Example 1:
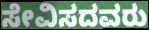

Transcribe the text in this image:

ಸೇವಿಸದವರು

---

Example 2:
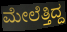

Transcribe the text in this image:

ಮೇಲೆತ್ತಿದ್ದ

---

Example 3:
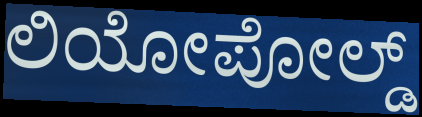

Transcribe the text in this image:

ಲಿಯೋಪೋಲ್ಡ್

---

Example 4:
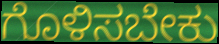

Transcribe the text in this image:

ಗೊಳಿಸಬೇಕು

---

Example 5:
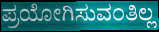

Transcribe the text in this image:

ಪ್ರಯೋಗಿಸುವಂತಿಲ್ಲ